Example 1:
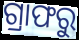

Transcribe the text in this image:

ଗ୍ରାଫରୁ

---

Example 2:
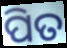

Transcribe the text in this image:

ପିତ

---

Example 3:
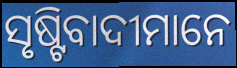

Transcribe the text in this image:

ସୃଷ୍ଟିବାଦୀମାନେ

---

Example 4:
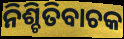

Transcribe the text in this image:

ନିଶ୍ଚିତିବାଚକ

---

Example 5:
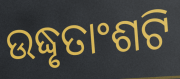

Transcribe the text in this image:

ଉଦ୍ଧୃତାଂଶଟି